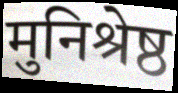
मुनिश्रेष्ठ